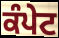
ਕੰਪੇਟ